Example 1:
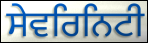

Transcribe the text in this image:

ਸੇਵਰਿਨਿਟੀ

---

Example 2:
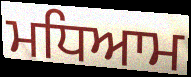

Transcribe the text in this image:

ਮਧਿਆਮ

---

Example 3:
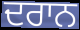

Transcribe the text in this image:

ਦਰਾਨ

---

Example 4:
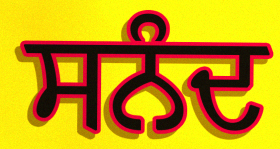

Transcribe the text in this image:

ਸਨੰਦ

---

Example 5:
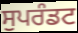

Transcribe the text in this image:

ਸੁਪਰੰਡਟ